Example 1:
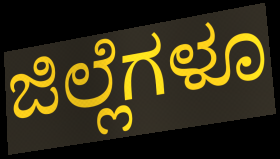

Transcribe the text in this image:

ಜಿಲ್ಲೆಗಳೂ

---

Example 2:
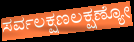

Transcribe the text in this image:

ಸರ್ವಲಕ್ಷಣಲಕ್ಷಣ್ಯೋ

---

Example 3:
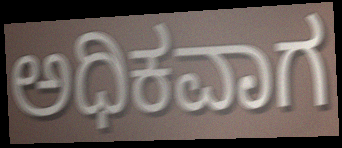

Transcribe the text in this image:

ಅಧಿಕವಾಗ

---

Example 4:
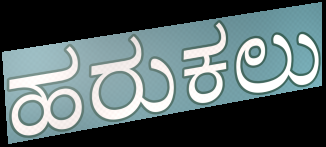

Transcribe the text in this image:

ಹರುಕಲು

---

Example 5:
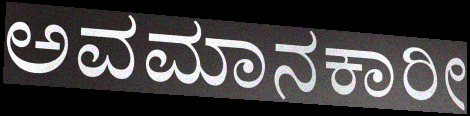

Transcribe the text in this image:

ಅವಮಾನಕಾರೀ